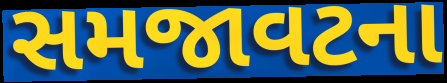
સમજાવટના